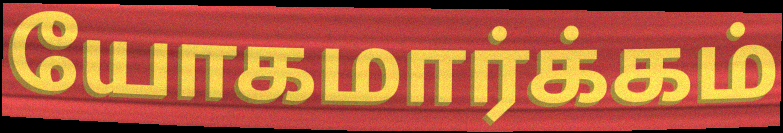
யோகமார்க்கம்